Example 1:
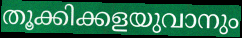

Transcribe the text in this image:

തൂക്കിക്കളയുവാനും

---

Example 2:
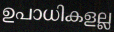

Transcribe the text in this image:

ഉപാധികളല്ല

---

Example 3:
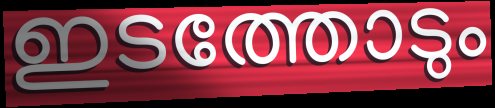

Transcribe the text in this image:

ഇടത്തോടും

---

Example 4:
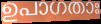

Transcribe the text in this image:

ഉപാഗതാഃ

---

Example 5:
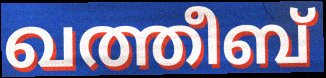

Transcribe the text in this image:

ഖത്തീബ്